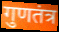
गुणतंत्र